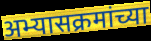
अभ्यासक्रमांच्या